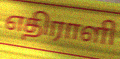
எதிராளி